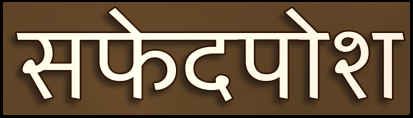
सफेदपोश